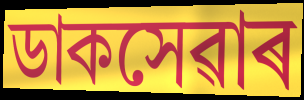
ডাকসেৱাৰ